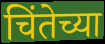
चिंतेच्या